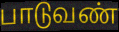
பாடுவண்